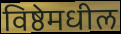
विष्ठेमधील